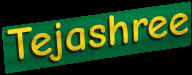
Tejashree